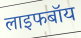
लाइफबॉय